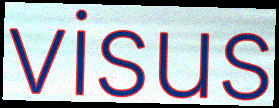
visus